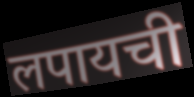
लपायची